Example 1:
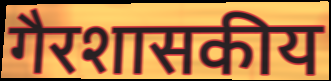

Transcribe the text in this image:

गैरशासकीय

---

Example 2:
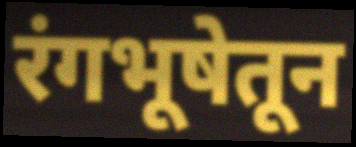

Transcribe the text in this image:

रंगभूषेतून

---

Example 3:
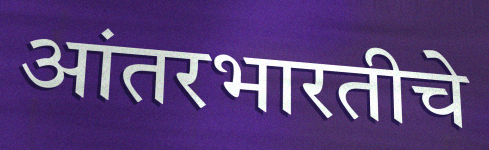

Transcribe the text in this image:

आंतरभारतीचे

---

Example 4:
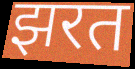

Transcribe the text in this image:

झरत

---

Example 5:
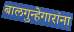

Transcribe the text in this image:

बालगुन्हेगारांना